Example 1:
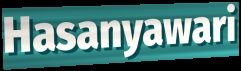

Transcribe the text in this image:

Hasanyawari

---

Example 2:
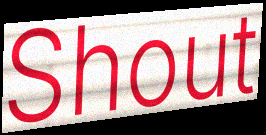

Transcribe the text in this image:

Shout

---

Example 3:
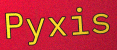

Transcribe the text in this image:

Pyxis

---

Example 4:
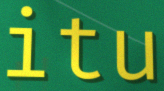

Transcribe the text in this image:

itu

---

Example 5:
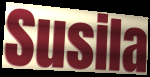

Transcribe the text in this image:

Susila